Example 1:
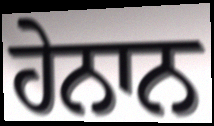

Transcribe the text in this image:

ਹੇਨਾਨ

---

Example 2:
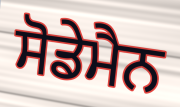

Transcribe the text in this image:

ਸੋਡੇਮੈਨ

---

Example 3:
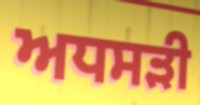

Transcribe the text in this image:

ਅਧਸੜੀ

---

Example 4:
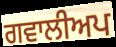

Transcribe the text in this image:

ਗਵਾਲੀਅਪ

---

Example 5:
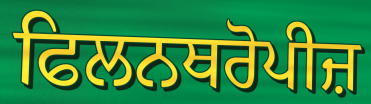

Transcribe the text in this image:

ਫਿਲਨਥਰੋਪੀਜ਼